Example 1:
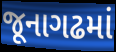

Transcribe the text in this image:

જૂનાગઢમાં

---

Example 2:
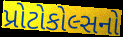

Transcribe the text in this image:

પ્રોટોકોલ્સનો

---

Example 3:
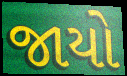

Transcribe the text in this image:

જાયો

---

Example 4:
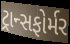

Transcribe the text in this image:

ટ્રાન્સફોર્મર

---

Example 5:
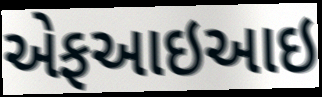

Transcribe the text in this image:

એફઆઇઆઇ